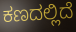
ಕಣದಲ್ಲಿದೆ